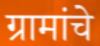
ग्रामांचे